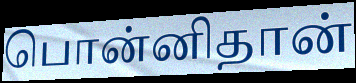
பொன்னிதான்